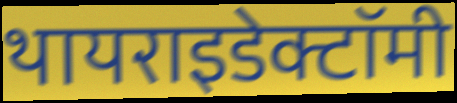
थायराइडेक्टॉमी